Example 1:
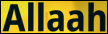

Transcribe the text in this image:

Allaah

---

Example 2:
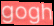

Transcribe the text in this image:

gogh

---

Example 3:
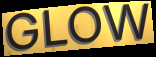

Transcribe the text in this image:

GLOW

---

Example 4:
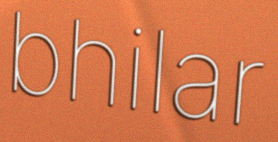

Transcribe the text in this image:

bhilar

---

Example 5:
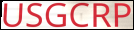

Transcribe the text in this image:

USGCRP